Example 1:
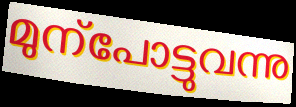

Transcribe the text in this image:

മുന്പോട്ടുവന്നു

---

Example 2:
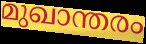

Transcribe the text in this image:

മുഖാന്തരം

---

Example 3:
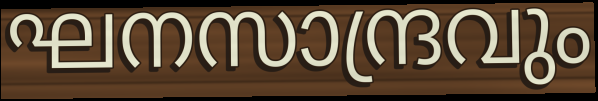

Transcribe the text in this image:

ഘനസാന്ദ്രവും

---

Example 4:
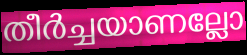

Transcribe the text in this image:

തീർച്ചയാണല്ലോ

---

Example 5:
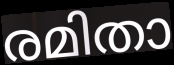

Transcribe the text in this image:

രമിതാ